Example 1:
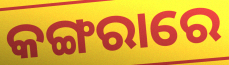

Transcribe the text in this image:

କଙ୍ଗରାରେ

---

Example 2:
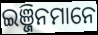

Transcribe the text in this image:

ଇଞ୍ଜିନମାନେ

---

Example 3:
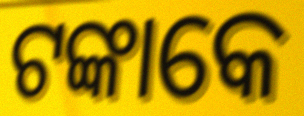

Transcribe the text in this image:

ଟଙ୍କାକେ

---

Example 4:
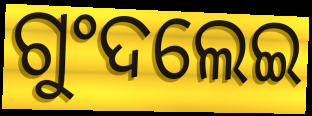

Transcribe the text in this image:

ଗୁଂଦଲେଇ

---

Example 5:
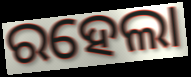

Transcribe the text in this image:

ରହେଲା